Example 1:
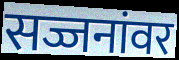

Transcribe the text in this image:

सज्जनांवर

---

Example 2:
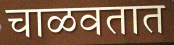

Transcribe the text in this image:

चाळवतात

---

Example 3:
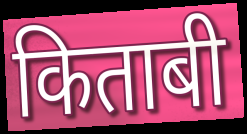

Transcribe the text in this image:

किताबी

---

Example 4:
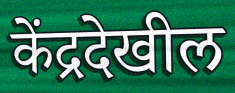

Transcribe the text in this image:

केंद्रदेखील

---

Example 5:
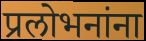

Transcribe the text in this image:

प्रलोभनांना